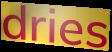
dries